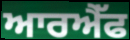
ਆਰਐੱਫ